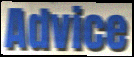
Advice